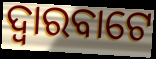
ଦ୍ୱାରବାଟେ